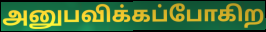
அனுபவிக்கப்போகிற